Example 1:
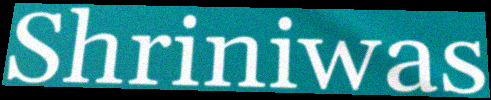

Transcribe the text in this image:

Shriniwas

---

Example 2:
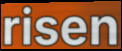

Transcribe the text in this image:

risen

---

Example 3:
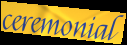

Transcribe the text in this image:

ceremonial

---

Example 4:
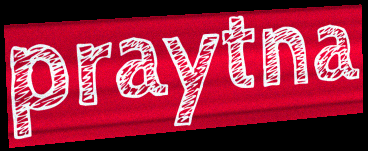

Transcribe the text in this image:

praytna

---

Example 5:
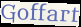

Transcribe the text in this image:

Goffart